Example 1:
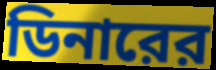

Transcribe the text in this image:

ডিনারের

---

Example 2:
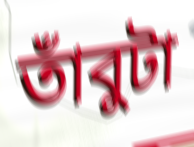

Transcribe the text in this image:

তাঁবুটা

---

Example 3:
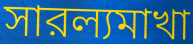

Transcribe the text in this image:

সারল্যমাখা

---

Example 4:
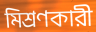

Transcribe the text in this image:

মিশ্রণকারী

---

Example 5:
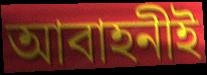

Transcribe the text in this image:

আবাহনীই